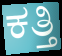
ಕತ್ತಿ